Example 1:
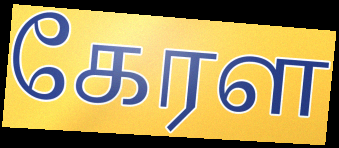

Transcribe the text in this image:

கேரள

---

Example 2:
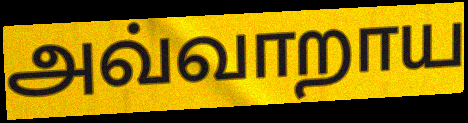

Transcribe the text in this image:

அவ்வாறாய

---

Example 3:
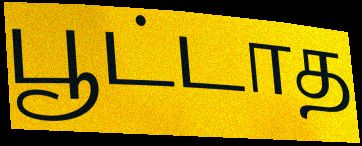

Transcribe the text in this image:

பூட்டாத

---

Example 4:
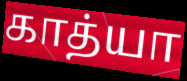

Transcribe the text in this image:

காத்யா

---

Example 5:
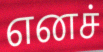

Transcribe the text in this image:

எனச்